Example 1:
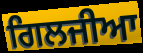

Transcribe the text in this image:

ਗਿਲਜੀਆ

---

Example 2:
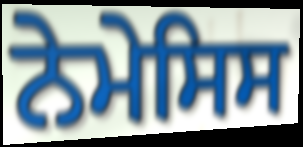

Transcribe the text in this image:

ਨੇਮੇਸਿਸ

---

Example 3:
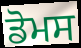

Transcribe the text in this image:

ਡੋਮਸ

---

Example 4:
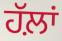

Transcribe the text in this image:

ਹੱਲ਼ਾਂ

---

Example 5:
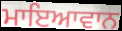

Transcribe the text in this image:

ਮਾਇਆਵਾਨ